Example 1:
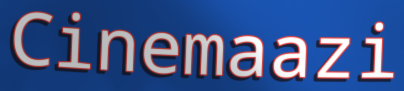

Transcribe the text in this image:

Cinemaazi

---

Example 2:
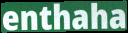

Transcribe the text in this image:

enthaha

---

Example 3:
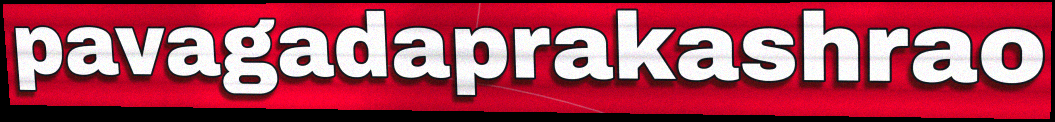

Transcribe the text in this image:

pavagadaprakashrao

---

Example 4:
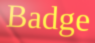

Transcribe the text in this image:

Badge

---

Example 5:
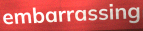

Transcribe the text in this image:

embarrassing